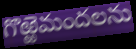
గొఱ్ఱెమందలను